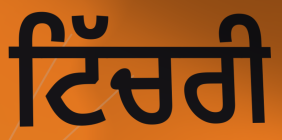
ਟਿੱਚਰੀ